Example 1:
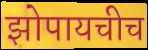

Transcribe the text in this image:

झोपायचीच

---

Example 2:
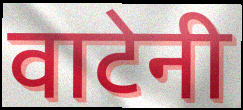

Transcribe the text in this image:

वाटेनी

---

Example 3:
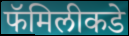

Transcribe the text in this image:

फॅमिलीकडे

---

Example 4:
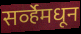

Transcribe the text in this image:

सर्व्हेमधून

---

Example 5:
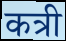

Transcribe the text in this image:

कत्री